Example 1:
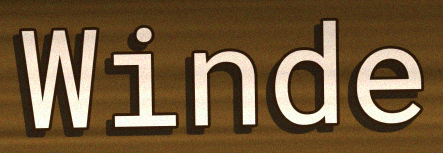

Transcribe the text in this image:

Winde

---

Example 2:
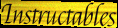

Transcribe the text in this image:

Instructables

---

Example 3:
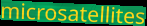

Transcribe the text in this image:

microsatellites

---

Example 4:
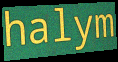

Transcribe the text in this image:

halym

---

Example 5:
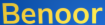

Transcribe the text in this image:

Benoor